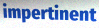
impertinent